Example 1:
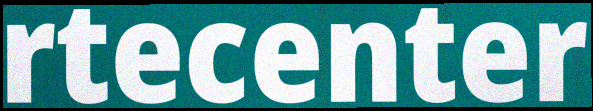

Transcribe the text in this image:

rtecenter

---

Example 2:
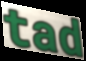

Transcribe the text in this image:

tad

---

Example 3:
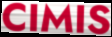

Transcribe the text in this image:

CIMIS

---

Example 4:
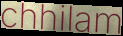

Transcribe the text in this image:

chhilam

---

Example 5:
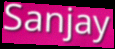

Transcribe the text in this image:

Sanjay